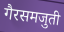
गैरसमजुती